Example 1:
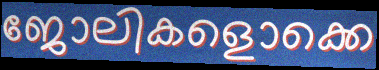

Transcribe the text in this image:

ജോലികളൊക്കെ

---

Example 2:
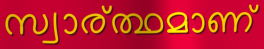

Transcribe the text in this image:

സ്വാര്ത്ഥമാണ്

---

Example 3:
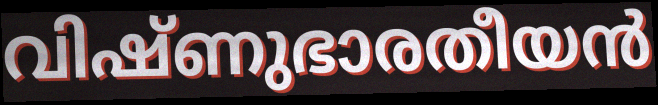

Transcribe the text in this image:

വിഷ്ണുഭാരതീയൻ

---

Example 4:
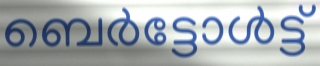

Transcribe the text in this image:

ബെർട്ടോൾട്ട്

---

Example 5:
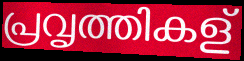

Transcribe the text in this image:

പ്രവൃത്തികള്